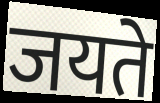
जयते